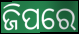
ଜିପରେ